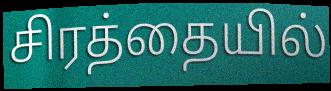
சிரத்தையில்